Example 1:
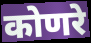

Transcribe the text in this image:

कोणरे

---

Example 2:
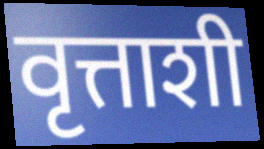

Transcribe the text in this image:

वृत्ताशी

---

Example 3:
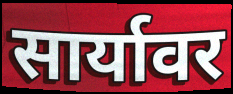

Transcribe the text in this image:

सार्यावर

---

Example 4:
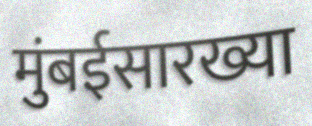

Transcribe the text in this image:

मुंबईसारख्या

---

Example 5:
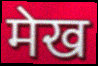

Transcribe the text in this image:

मेख